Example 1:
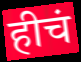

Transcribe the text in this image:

हीचं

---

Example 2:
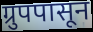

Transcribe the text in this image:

ग्रुपपासून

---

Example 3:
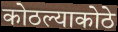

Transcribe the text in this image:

कोठल्याकोठे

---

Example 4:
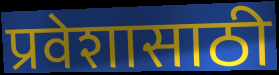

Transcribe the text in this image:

प्रवेशासाठी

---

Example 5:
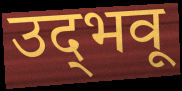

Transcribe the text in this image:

उद्‌भवू